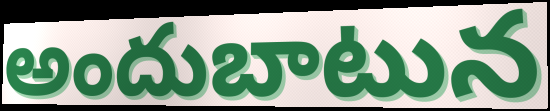
అందుబాటున